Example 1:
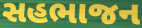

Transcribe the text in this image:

સહભાજન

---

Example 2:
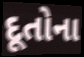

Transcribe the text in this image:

દૂતોના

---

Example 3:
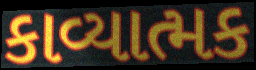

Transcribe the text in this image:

કાવ્યાત્મક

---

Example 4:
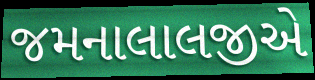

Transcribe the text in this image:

જમનાલાલજીએ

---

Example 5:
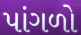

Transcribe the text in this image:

પાંગળો